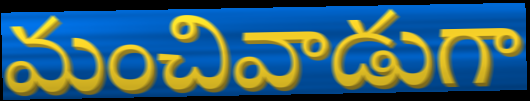
మంచివాడుగా